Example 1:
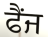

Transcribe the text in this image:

ਫੈਂਜ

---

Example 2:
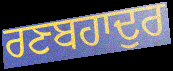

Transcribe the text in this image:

ਰਣਬਹਾਦੁਰ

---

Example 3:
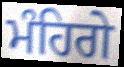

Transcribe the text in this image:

ਮੰਹਿਗੇ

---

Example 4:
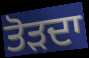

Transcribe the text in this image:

ਤੋੜਦਾ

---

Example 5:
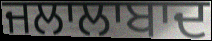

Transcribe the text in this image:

ਜਲਾਲਾਬਾਦ